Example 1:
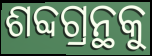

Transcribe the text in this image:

ଶବ୍ଦଗ୍ରନ୍ଥକୁ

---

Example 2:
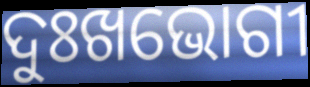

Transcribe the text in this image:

ଦୁଃଖଭୋଗୀ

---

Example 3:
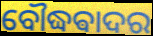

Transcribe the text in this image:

ବୌଦ୍ଧଵାଦର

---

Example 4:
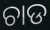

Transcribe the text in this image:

ଚାଡ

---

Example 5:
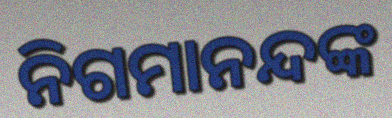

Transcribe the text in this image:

ନିଗମାନନ୍ଦଙ୍କ